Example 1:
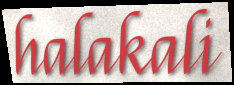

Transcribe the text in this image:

halakali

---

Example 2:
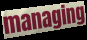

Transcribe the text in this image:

managing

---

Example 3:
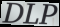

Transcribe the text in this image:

DLP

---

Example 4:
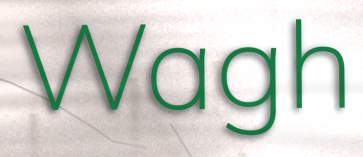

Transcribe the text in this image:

Wagh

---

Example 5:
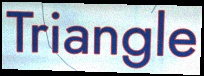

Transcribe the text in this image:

Triangle